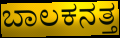
ಬಾಲಕನತ್ತ